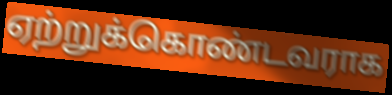
ஏற்றுக்கொண்டவராக